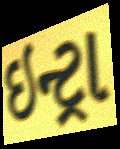
ઇન્ટ્રા